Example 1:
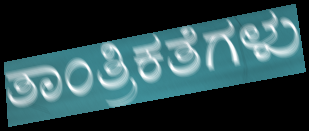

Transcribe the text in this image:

ತಾಂತ್ರಿಕತೆಗಳು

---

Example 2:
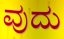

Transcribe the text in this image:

ವುದು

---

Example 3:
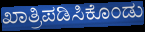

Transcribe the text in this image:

ಖಾತ್ರಿಪಡಿಸಿಕೊಂಡು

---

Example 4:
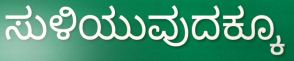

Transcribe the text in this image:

ಸುಳಿಯುವುದಕ್ಕೂ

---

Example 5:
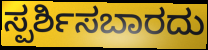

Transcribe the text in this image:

ಸ್ಪರ್ಶಿಸಬಾರದು